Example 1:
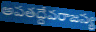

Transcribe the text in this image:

అపతద్దేవరాజస్య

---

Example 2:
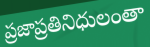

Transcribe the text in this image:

ప్రజాప్రతినిధులంతా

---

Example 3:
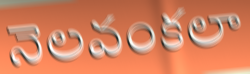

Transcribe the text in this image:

నెలవంకలా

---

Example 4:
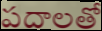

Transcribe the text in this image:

పదాలతో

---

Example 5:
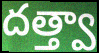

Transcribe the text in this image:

దత్త్వా